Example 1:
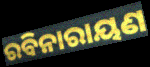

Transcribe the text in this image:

ରବିନାରାୟଣ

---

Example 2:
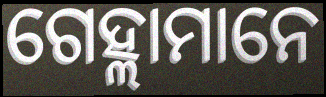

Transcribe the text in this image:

ଗେହ୍ଲାମାନେ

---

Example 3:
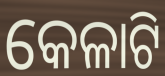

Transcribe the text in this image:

କେଳାଟି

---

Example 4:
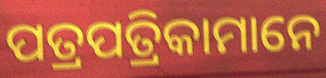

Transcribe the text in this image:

ପତ୍ରପତ୍ରିକାମାନେ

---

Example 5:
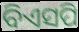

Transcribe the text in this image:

ବିଏସପି